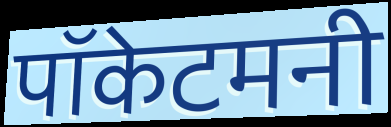
पॉकेटमनी